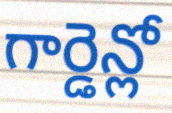
గార్డెన్లో